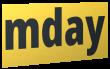
mday